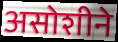
असोशीने